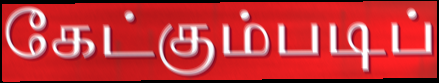
கேட்கும்படிப்